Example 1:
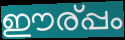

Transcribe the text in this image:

ഈര്പ്പം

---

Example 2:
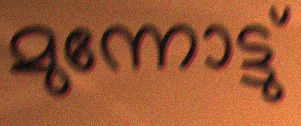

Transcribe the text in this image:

മുന്നോട്ടു്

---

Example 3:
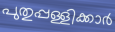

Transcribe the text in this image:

പുതുപ്പള്ളിക്കാർ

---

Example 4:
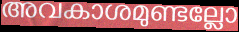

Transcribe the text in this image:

അവകാശമുണ്ടല്ലോ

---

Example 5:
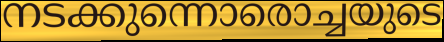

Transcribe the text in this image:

നടക്കുന്നൊരൊച്ചയുടെ